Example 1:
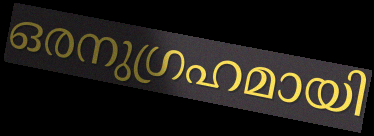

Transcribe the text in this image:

ഒരനുഗ്രഹമായി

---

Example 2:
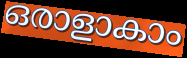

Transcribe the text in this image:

ഒരാളാകാം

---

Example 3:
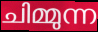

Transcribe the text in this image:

ചിമ്മുന്ന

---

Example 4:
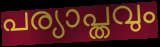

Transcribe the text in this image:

പര്യാപ്തവും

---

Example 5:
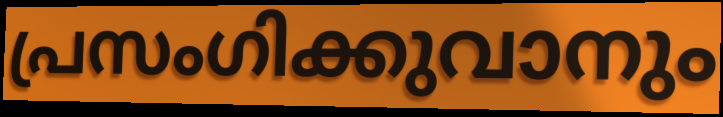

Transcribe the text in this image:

പ്രസംഗിക്കുവാനും